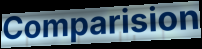
Comparision